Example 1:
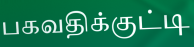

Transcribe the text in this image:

பகவதிக்குட்டி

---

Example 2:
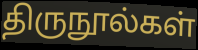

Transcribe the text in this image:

திருநூல்கள்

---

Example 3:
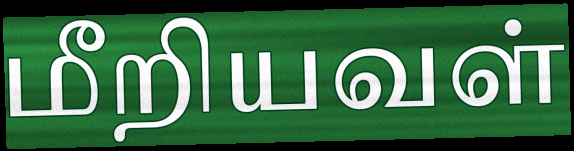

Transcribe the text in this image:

மீறியவள்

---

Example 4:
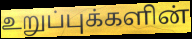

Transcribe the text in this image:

உறுப்புக்களின்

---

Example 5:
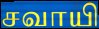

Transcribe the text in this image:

சவாயி